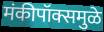
मंकीपॉक्समुळे